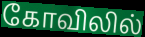
கோவிலில்